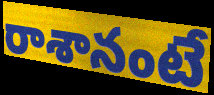
రాశానంటే